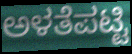
ಅಳತೆಪಟ್ಟಿ